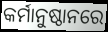
କର୍ମାନୁଷ୍ଠାନରେ